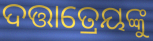
ଦତ୍ତାତ୍ରେୟଙ୍କୁ